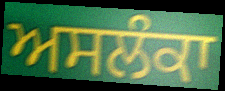
ਅਸਲੰਕਾ